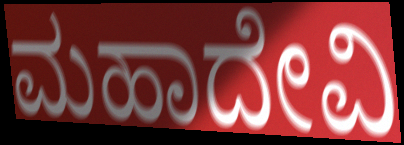
ಮಹಾದೇವಿ